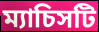
ম্যাচিসটি